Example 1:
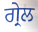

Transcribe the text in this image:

ਗ੍ਰੇਲ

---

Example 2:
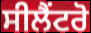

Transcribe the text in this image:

ਸੀਲੈਂਟਰੋ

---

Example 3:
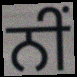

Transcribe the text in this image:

ਨੀਂ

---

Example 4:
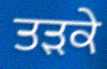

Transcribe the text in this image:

ਤੜਕੇ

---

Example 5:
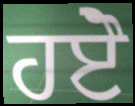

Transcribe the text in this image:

ਹਏੋ